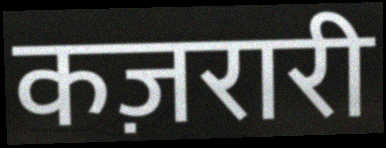
कज़रारी